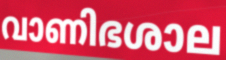
വാണിഭശാല